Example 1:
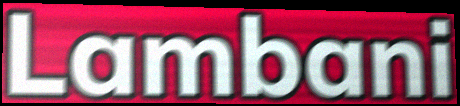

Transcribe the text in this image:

Lambani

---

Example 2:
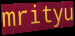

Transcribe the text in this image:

mrityu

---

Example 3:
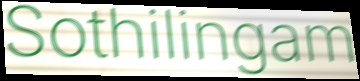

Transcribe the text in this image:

Sothilingam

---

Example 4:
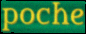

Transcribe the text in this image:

poche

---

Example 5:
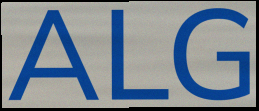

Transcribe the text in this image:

ALG